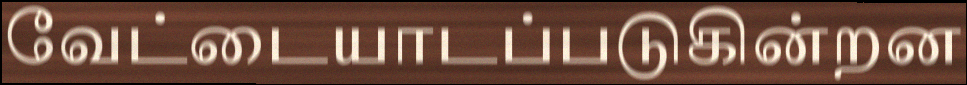
வேட்டையாடப்படுகின்றன